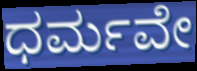
ಧರ್ಮವೇ